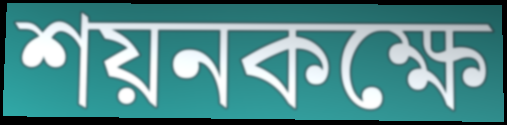
শয়নকক্ষে